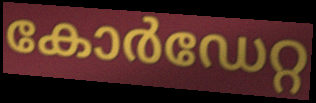
കോർഡേറ്റ